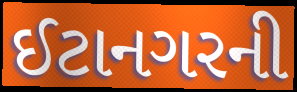
ઈટાનગરની